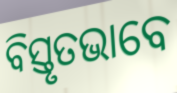
ବିସ୍ତୃତଭାବେ